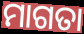
ମାଗତା